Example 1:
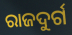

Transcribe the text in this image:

ରାଜଦୁର୍ଗ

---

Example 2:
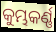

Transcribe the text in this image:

କୁମ୍ଭକର୍ଣ୍ଣ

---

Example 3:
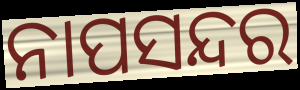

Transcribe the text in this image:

ନାପସନ୍ଦର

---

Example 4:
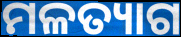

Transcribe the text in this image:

ମଳତ୍ୟାଗ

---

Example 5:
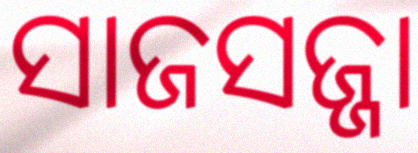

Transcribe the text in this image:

ସାଜସଜ୍ଜା